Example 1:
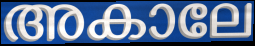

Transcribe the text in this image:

അകാലേ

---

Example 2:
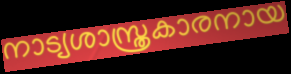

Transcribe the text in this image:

നാട്യശാസ്ത്രകാരനായ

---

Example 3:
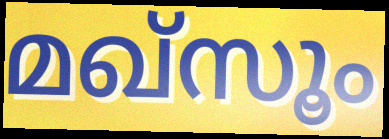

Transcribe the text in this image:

മഖ്സൂം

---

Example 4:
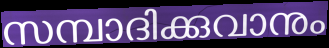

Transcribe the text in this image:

സമ്പാദിക്കുവാനും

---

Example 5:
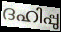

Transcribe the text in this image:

ദഹിപ്പു